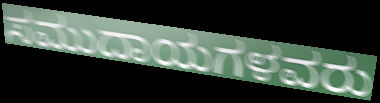
ಸಮುದಾಯಗಳವರು